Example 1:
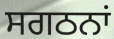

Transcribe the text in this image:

ਸਗਠਨਾਂ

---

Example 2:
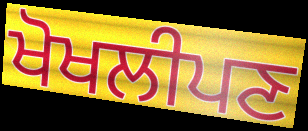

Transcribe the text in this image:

ਖੋਖਲੀਪਣ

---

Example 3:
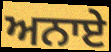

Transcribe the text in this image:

ਅਨਾਏ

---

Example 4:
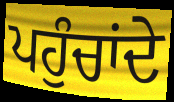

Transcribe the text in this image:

ਪਹੁੰਚਾਂਦੇ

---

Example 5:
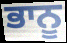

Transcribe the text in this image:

ਭਾਨੂ